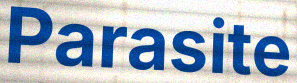
Parasite